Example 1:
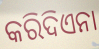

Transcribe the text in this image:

କରିଦିଏନା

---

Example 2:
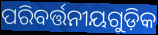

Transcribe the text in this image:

ପରିବର୍ତ୍ତନୀୟଗୁଡ଼ିକ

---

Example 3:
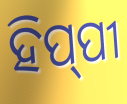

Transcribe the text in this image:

ହିପ୍‍ପୀ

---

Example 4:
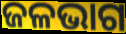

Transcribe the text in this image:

ଜଳଭାଗ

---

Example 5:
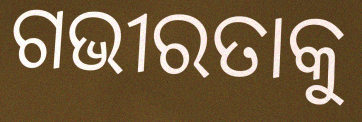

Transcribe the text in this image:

ଗଭୀରତାକୁ